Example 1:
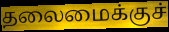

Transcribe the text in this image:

தலைமைக்குச்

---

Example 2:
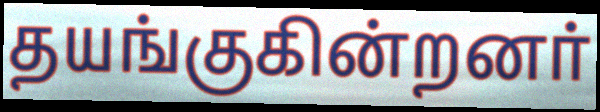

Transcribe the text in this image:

தயங்குகின்றனர்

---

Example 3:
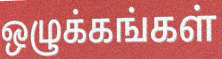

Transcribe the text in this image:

ஒழுக்கங்கள்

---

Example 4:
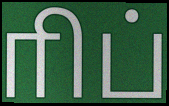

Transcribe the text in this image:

ரிப்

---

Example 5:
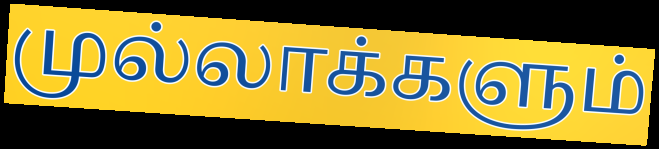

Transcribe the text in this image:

முல்லாக்களும்